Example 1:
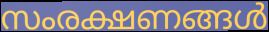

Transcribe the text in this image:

സംരക്ഷണങ്ങൾ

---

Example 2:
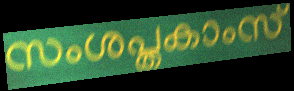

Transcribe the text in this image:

സംശപ്തകാംസ്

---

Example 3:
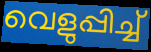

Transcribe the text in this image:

വെളുപ്പിച്ച്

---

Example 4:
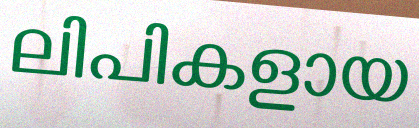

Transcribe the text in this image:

ലിപികളായ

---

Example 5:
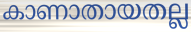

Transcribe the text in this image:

കാണാതായതല്ല